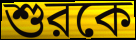
শুরকে